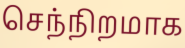
செந்நிறமாக